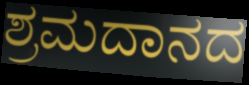
ಶ್ರಮದಾನದ